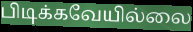
பிடிக்கவேயில்லை